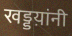
खड्डय़ांनी